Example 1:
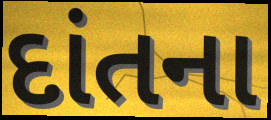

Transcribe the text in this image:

દાંતના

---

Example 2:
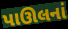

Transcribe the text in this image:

પાઊલનાં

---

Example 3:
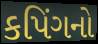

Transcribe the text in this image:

કપિંગનો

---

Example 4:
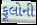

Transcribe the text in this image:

ફૂલોની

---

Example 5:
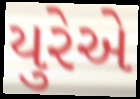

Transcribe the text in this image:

યુરેએ